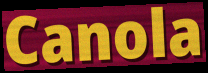
Canola